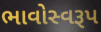
ભાવોસ્વરૂપ